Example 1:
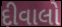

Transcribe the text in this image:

દીવાલો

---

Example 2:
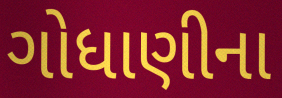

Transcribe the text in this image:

ગોધાણીના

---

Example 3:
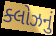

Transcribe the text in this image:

ક્લોઝનું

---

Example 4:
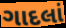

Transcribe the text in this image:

ગાદલાં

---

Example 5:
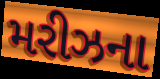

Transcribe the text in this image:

મરીઝના